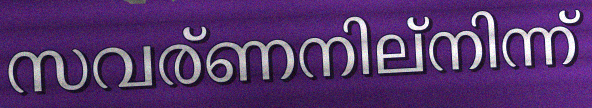
സവര്ണനില്നിന്ന്